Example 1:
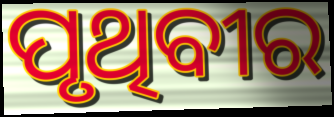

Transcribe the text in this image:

ପୃଥିବୀର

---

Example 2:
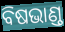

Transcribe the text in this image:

ବିଷଭାଣ୍ଡ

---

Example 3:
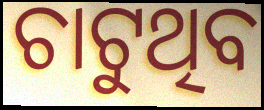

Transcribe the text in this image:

ଚାଟୁଥିବ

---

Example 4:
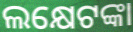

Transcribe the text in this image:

ଲକ୍ଷେଟଙ୍କା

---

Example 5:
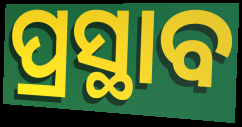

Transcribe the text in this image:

ପ୍ରସ୍ଥାବ